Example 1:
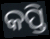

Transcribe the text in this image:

କପ୍ତି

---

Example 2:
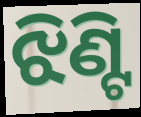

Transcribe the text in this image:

ଝିଣ୍ଟି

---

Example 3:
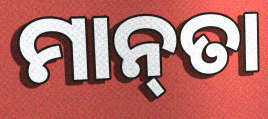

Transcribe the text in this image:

ମାନ୍‌ତା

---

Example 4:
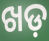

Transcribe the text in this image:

ଖଡ଼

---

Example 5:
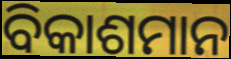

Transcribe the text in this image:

ବିକାଶମାନ